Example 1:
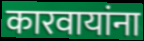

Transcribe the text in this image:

कारवायांना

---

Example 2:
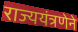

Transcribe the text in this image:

राज्ययंत्रणेने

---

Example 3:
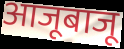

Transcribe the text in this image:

आजूबाजू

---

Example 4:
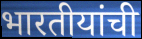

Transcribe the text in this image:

भारतीयांची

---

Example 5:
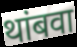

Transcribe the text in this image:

थांबवा